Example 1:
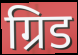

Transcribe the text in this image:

ग्रिड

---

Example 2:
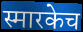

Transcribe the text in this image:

स्मारकेच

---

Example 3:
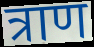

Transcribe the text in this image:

त्राण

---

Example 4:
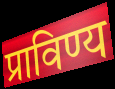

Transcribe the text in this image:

प्राविण्य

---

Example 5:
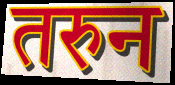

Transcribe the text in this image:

तरुन